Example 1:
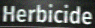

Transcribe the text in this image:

Herbicide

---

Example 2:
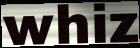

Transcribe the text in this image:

whiz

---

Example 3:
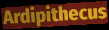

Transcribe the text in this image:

Ardipithecus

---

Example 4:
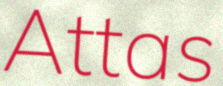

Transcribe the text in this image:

Attas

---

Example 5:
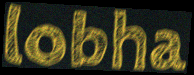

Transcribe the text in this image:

lobha